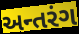
અન્તરંગ